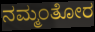
ನಮ್ಮಂತೋರ